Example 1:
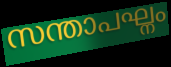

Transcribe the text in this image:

സന്താപഘ്നം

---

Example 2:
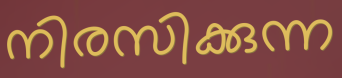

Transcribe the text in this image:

നിരസിക്കുന്ന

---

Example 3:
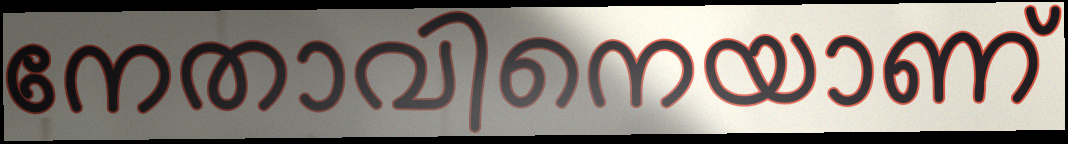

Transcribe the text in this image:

നേതാവിനെയാണ്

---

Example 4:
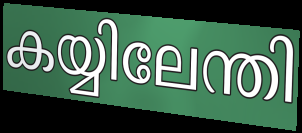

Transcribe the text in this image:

കയ്യിലേന്തി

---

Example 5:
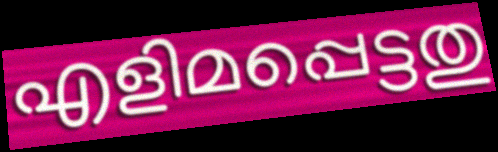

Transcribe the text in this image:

എളിമപ്പെട്ടതു